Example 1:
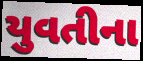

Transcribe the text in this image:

યુવતીના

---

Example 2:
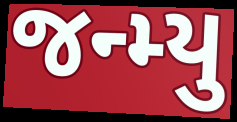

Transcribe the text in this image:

જન્મ્યુ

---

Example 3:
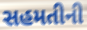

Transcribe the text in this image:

સહમતીની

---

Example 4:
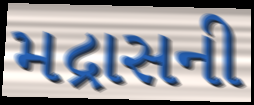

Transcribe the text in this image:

મદ્રાસની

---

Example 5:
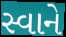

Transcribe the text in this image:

સ્વાને